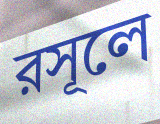
রসূলে